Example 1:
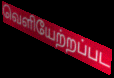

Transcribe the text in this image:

வெளியேற்றப்பட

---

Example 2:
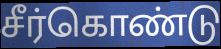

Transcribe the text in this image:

சீர்கொண்டு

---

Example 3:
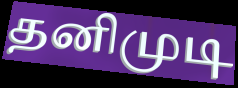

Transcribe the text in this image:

தனிமுடி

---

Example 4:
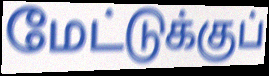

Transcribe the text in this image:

மேட்டுக்குப்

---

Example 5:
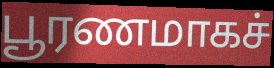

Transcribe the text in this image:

பூரணமாகச்